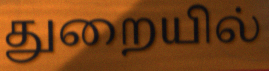
துறையில்